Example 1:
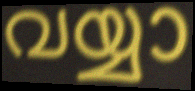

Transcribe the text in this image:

വയ്യാ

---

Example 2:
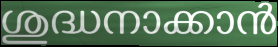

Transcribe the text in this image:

ശുദ്ധനാക്കാൻ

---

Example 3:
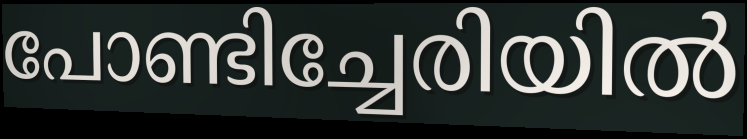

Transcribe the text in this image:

പോണ്ടിച്ചേരിയിൽ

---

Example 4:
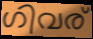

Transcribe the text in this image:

ഗിവര്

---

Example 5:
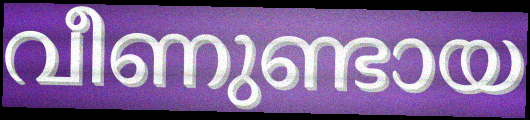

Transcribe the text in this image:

വീണുണ്ടായ